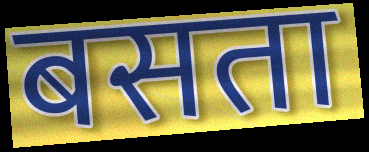
बसता